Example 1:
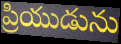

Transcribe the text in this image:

ప్రియుడును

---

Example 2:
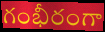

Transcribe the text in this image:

గంభీరంగా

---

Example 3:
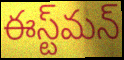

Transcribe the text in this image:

ఈస్ట్‌మన్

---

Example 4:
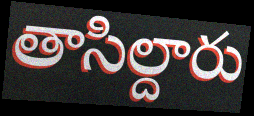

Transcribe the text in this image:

తాసిల్దారు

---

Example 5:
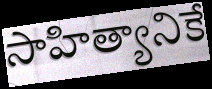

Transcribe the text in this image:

సాహిత్యానికే